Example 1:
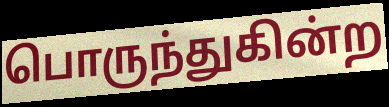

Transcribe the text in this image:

பொருந்துகின்ற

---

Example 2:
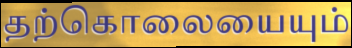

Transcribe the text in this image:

தற்கொலையையும்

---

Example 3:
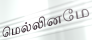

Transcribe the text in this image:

மெல்லினமே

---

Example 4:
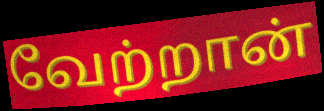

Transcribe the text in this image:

வேற்றான்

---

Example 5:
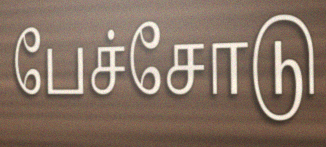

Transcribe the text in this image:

பேச்சோடு